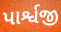
પાર્શ્વજી